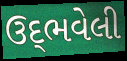
ઉદ્‌ભવેલી